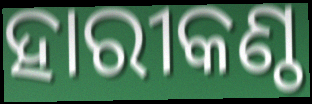
ହାରୀକଣ୍ଠ